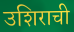
उशिराची